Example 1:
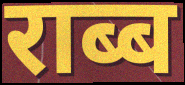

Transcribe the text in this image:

राब्ब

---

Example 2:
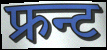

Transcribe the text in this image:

फ्रन्ट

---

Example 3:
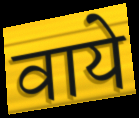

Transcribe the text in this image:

वाये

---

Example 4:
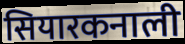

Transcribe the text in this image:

सियारकनाली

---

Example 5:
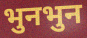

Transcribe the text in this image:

भुनभुन